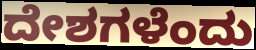
ದೇಶಗಳೆಂದು